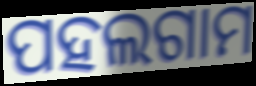
ପହଲଗାମ